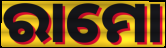
ରାମୋ